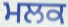
ਮਲਕ